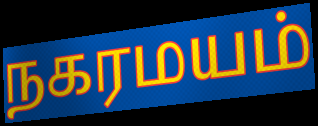
நகரமயம்